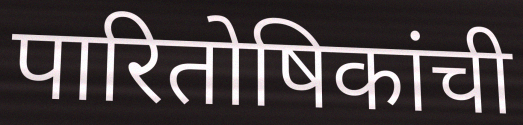
पारितोषिकांची